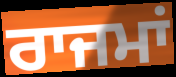
ਰਾਜਮਾਂ